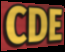
CDE